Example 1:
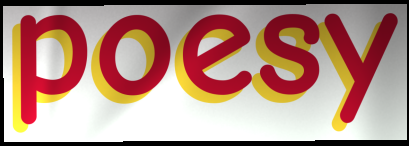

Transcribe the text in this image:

poesy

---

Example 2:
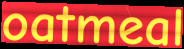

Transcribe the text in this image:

oatmeal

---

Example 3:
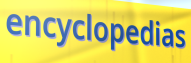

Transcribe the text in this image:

encyclopedias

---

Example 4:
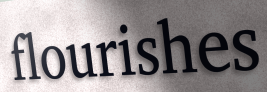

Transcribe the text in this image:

flourishes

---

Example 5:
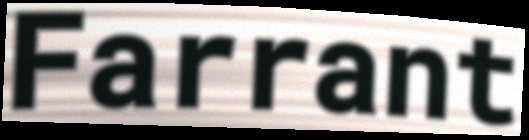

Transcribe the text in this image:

Farrant